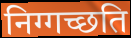
निग्गच्छति